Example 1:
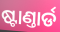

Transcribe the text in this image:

ଷ୍ଟାଣ୍ତାର୍ଡ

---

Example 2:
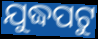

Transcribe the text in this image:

ଯୁଦ୍ଧପଟୁ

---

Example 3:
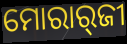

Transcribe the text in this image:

ମୋରାର୍‍ଜୀ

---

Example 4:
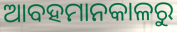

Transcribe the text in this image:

ଆବହମାନକାଳରୁ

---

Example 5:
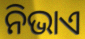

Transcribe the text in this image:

ନିଭାଏ